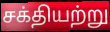
சக்தியற்று